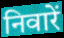
निवारें